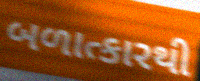
બળાત્કારથી